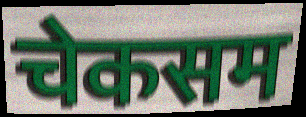
चेकसम